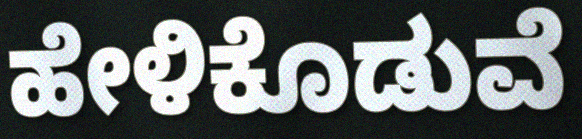
ಹೇಳಿಕೊಡುವೆ